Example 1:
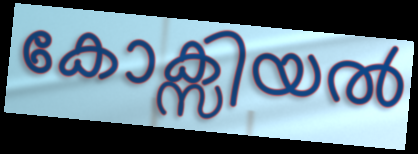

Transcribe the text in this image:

കോക്സിയൽ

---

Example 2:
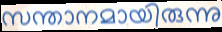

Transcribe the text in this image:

സന്താനമായിരുന്നു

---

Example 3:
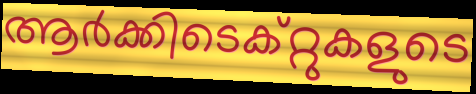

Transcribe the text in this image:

ആർക്കിടെക്റ്റുകളുടെ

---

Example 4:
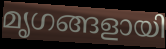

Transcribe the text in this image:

മൃഗങ്ങളായി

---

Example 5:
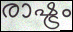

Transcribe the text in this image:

രാഷ്ട്രം